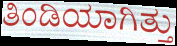
ತಿಂಡಿಯಾಗಿತ್ತು